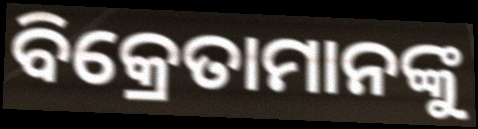
ବିକ୍ରେତାମାନଙ୍କୁ